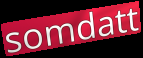
somdatt